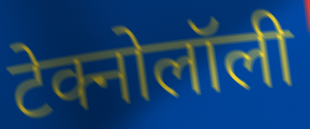
टेक्नोलॉली